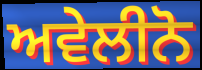
ਅਵੇਲੀਨੋ